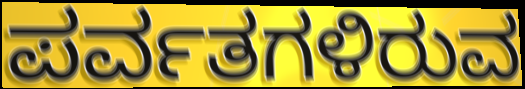
ಪರ್ವತಗಳಿರುವ